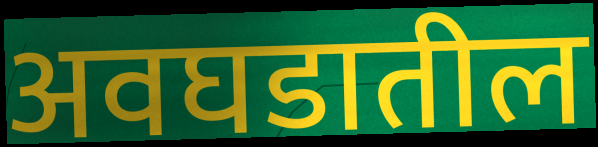
अवघडातील